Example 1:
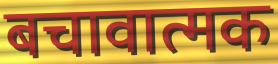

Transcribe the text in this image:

बचावात्मक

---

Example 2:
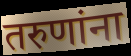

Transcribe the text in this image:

तरुणांना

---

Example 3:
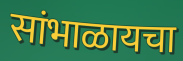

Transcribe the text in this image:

सांभाळायचा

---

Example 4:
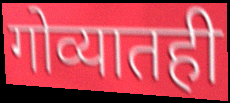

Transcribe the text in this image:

गोव्यातही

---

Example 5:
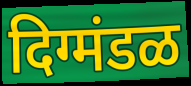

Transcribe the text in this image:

दिग्मंडळ